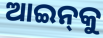
ଆଇନ୍‍କୁ